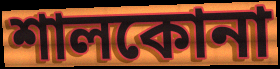
শালকোনা